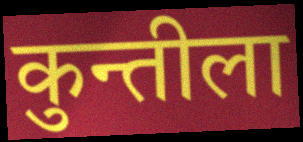
कुन्तीला